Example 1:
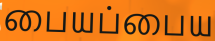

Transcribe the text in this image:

பையப்பைய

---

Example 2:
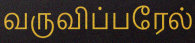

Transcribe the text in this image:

வருவிப்பரேல்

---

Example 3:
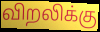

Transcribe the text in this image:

விறலிக்கு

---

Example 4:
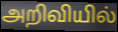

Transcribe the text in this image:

அறிவியில்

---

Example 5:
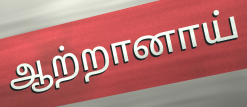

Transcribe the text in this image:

ஆற்றானாய்